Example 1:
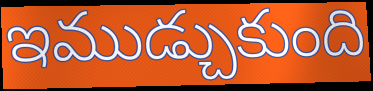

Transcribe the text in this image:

ఇముడ్చుకుంది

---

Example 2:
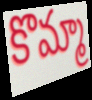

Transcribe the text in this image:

కొమ్మా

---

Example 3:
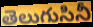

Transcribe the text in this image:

తెలుగుసినీ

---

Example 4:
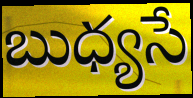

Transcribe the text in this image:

బుధ్యసే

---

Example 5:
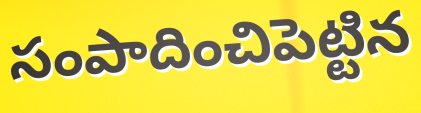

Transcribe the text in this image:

సంపాదించిపెట్టిన